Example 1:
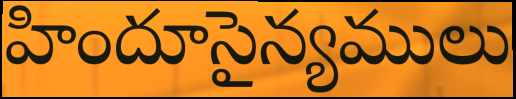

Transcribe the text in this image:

హిందూసైన్యములు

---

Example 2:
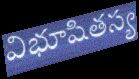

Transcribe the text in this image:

విభూషితస్య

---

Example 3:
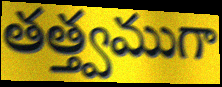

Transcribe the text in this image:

తత్త్వముగా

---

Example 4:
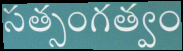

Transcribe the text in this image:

సత్సంగత్వం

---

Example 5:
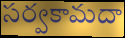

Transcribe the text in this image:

సర్వకామదా